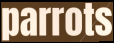
parrots